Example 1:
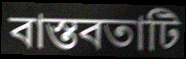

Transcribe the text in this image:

বাস্তবতাটি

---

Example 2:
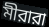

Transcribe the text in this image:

মীরারা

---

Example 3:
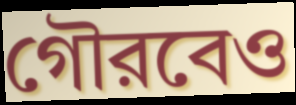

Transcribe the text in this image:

গৌরবেও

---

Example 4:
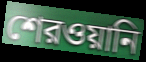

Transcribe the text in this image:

শেরওয়ানি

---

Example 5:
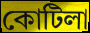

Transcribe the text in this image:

কোটিলা